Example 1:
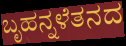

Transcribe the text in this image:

ಬೃಹನ್ನಳೆತನದ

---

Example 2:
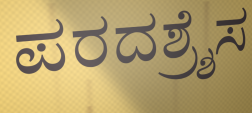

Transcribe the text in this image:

ಪರದಶ್ರ್ಶೆಸ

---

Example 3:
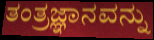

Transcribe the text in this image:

ತಂತ್ರಜ್ಞಾನವನ್ನು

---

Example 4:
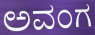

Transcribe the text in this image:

ಅವಂಗ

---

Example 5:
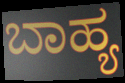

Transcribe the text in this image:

ಬಾಹ್ಯ